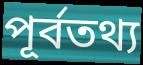
পূর্বতথ্য